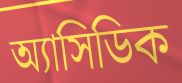
অ্যাসিডিক